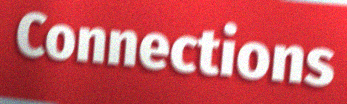
Connections